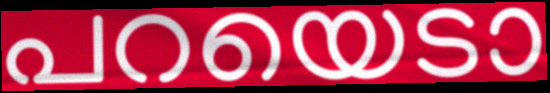
പറയെടാ